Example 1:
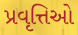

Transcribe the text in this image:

પ્રવૃત્તિઓ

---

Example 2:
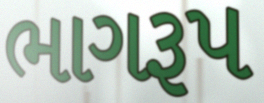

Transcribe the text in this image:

ભાગરૂપ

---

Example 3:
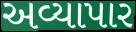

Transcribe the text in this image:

અવ્યાપાર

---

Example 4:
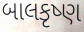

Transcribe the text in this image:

બાલકૃષ્ણ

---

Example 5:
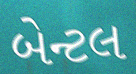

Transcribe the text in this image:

બેન્ટલ